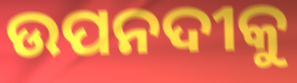
ଉପନଦୀକୁ